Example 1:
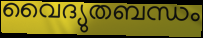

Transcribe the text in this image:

വൈദ്യുതബന്ധം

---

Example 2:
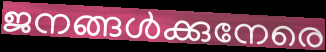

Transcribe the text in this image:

ജനങ്ങൾക്കുനേരെ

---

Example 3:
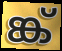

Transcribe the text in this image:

ങ്ക്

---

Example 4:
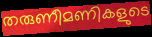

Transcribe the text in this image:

തരുണീമണികളുടെ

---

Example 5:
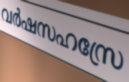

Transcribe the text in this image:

വർഷസഹസ്രേ